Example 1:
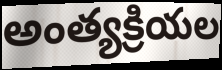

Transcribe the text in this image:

అంత్యక్రియల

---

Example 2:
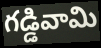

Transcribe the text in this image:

గడ్డివామి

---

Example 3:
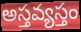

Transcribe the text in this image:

అస్తవ్యస్తం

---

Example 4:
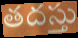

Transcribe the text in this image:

తదస్తు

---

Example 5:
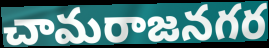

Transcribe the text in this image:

చామరాజనగర